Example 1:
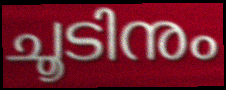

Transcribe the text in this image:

ചൂടിനും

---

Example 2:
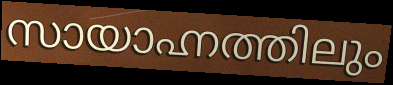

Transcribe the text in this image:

സായാഹ്നത്തിലും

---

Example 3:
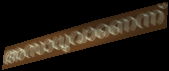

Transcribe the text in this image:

അസാധുവാണെന്ന്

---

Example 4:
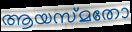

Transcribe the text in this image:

ആയസ്മതോ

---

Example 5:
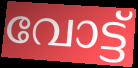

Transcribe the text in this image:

വോട്ട്